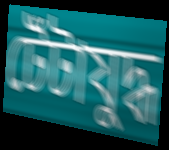
টেঁটাযুদ্ধ